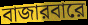
বাজারবারে